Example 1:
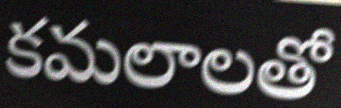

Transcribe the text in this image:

కమలాలతో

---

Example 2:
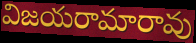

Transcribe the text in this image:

విజయరామారావు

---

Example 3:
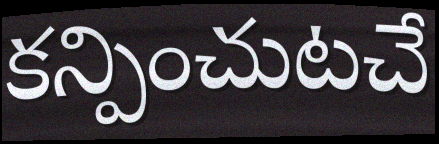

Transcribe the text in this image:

కన్పించుటచే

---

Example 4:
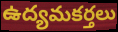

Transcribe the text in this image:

ఉద్యమకర్తలు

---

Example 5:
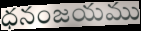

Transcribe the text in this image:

ధనంజయము